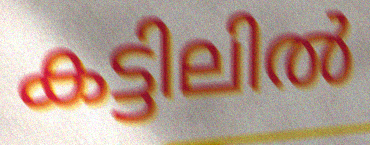
കട്ടിലിൽ